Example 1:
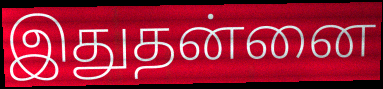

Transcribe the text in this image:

இதுதன்னை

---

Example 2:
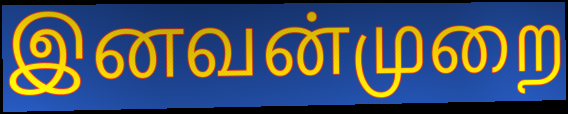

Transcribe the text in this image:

இனவன்முறை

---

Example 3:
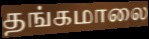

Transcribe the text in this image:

தங்கமாலை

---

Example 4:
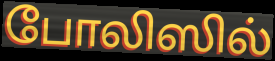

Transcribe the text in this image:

போலிஸில்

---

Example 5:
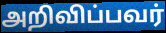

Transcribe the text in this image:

அறிவிப்பவர்